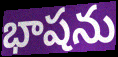
భాషను